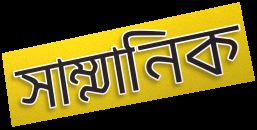
সাম্মানিক